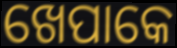
ଖେପାକେ